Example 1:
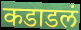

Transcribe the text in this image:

कडाडलं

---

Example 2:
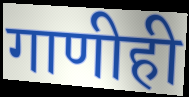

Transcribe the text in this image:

गाणीही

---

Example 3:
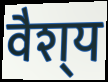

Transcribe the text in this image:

वैश्य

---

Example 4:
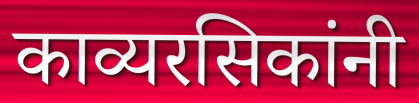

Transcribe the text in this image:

काव्यरसिकांनी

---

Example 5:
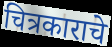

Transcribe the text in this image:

चित्रकाराचे